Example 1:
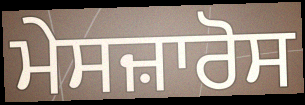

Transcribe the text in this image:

ਮੇਸਜ਼ਾਰੋਸ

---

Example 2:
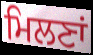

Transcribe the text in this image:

ਮਿਲਣਾਂ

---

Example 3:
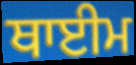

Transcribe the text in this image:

ਥਾਈਮ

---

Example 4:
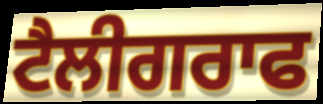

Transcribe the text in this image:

ਟੈਲੀਗਰਾਫ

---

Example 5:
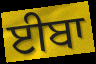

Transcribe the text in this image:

ਈਬਾ